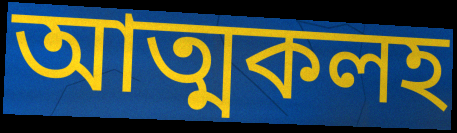
আত্মকলহ